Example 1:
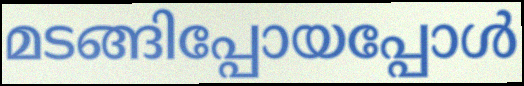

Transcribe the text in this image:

മടങ്ങിപ്പോയപ്പോൾ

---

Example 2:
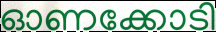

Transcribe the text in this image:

ഓണക്കോടി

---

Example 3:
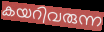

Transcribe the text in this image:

കയറിവരുന്ന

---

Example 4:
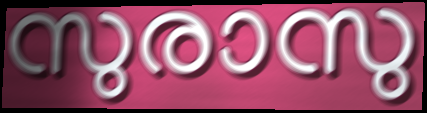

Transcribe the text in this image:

സുരാസു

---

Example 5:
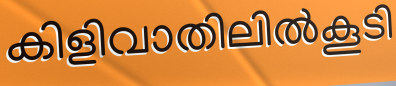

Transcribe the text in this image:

കിളിവാതിലിൽകൂടി